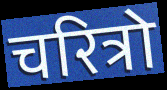
चरित्रो